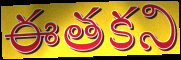
ఈతకని